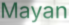
Mayan